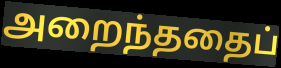
அறைந்ததைப்